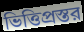
ভিত্তিপ্রস্তর